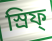
স্রিফ্